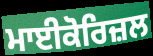
ਮਾਈਕੋਰਿਜ਼ਲ